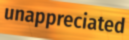
unappreciated